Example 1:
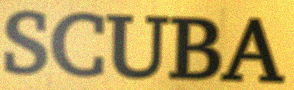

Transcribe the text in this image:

SCUBA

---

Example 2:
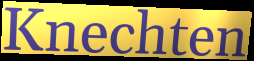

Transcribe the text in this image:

Knechten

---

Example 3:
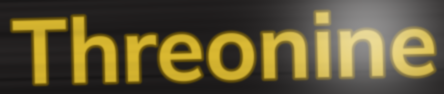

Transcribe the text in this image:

Threonine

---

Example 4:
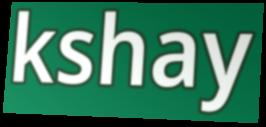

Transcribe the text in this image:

kshay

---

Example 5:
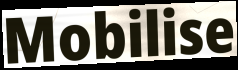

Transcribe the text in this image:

Mobilise